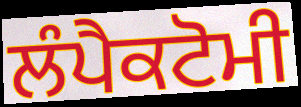
ਲੰਪੈਕਟੋਮੀ